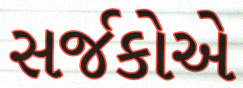
સર્જકોએ